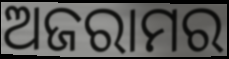
ଅଜରାମର